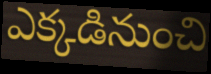
ఎక్కడినుంచి